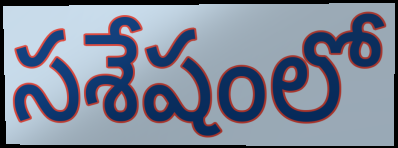
సశేషంలో